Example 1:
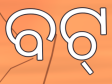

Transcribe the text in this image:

ବଟ୍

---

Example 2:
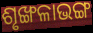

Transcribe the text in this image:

ଶୃଙ୍ଖଳାଭଙ୍ଗ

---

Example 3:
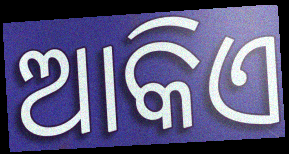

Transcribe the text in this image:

ଆକିଏ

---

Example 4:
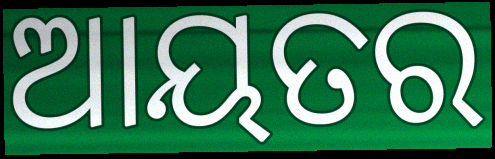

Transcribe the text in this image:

ଆୟତର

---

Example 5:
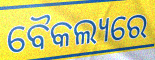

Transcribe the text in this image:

ବୈକଲ୍ୟରେ